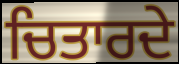
ਚਿਤਾਰਦੇ